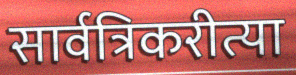
सार्वत्रिकरीत्या